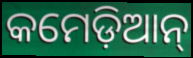
କମେଡ଼ିଆନ୍